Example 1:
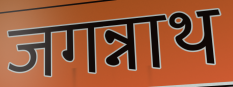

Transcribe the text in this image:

जगन्नाथ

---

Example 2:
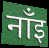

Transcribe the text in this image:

नाँइ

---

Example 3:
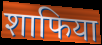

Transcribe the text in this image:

शाफिया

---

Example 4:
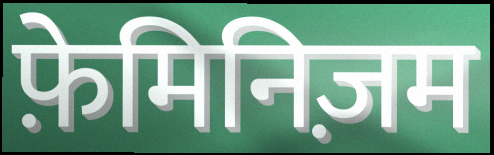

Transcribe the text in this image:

फ़ेमिनिज़म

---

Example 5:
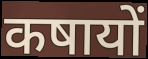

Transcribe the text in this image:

कषायों